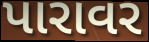
પારાવર